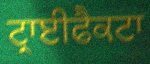
ਟ੍ਰਾਈਫੈਕਟਾ